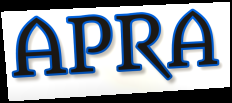
APRA